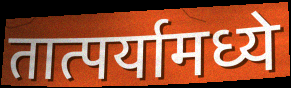
तात्पर्यामध्ये